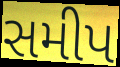
સમીપ